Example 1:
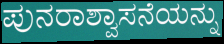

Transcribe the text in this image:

ಪುನರಾಶ್ವಾಸನೆಯನ್ನು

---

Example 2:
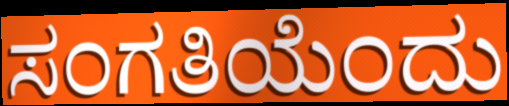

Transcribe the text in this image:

ಸಂಗತಿಯೆಂದು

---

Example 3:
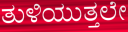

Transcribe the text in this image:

ತುಳಿಯುತ್ತಲೇ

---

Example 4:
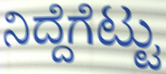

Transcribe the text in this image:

ನಿದ್ದೆಗೆಟ್ಟು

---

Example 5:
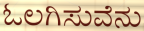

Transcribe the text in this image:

ಓಲಗಿಸುವೆನು